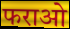
फराओ